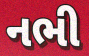
નભી